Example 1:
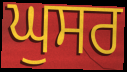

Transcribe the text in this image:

ਘੁਸਰ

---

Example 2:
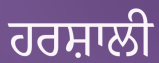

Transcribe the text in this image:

ਹਰਸ਼ਾਲੀ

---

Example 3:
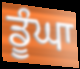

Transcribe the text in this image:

ਡੂੰਘਾ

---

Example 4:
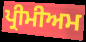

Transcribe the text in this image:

ਪ੍ਰੀਮੀਅਮ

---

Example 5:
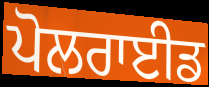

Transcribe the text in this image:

ਪੋਲਰਾਈਡ